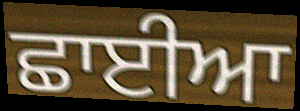
ਛਾਈਆ